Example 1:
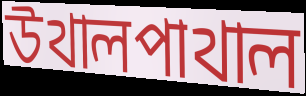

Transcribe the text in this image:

উথালপাথাল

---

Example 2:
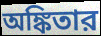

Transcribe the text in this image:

অঙ্কিতার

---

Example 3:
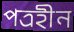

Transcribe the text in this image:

পত্রহীন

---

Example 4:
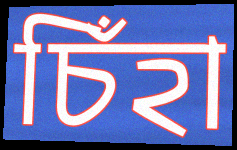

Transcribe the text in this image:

চিঁহা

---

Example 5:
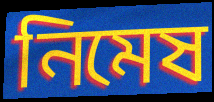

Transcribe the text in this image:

নিমেষ